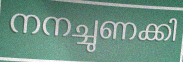
നനച്ചുണക്കി